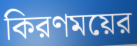
কিরণময়ের